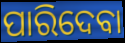
ପାରିଦେବା